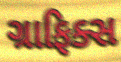
ગ્રાફિક્સ